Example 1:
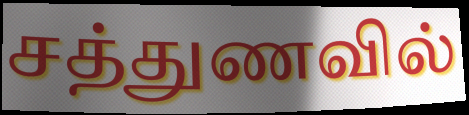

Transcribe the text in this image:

சத்துணவில்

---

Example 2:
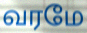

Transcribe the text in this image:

வரமே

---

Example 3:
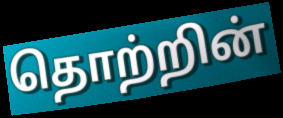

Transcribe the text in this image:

தொற்றின்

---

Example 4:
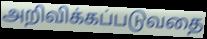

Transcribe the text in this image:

அறிவிக்கப்படுவதை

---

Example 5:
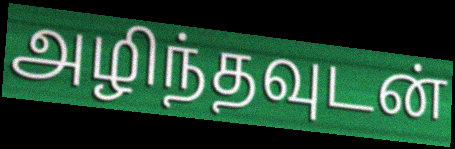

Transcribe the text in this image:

அழிந்தவுடன்